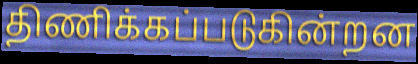
திணிக்கப்படுகின்றன